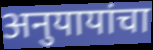
अनुयायांचा